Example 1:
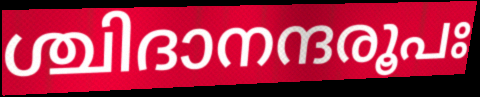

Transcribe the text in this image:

ശ്ചിദാനന്ദരൂപഃ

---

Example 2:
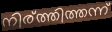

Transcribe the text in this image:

നിര്ത്തിത്തന്ന്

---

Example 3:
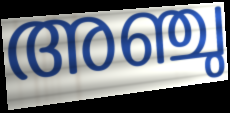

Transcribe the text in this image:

അഞ്ചു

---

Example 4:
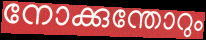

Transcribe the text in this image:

നോക്കുന്തോറും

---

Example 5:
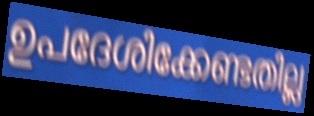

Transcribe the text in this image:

ഉപദേശിക്കേണ്ടതില്ല